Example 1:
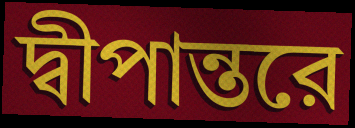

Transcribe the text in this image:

দ্বীপান্তরে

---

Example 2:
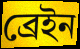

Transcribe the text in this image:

ব্রেইন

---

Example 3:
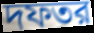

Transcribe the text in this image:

দফতর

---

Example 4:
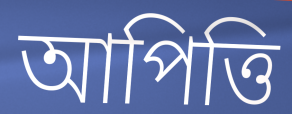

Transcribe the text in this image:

আপিত্তি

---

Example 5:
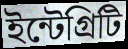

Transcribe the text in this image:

ইন্টেগ্রিটি